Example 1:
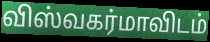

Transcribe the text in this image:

விஸ்வகர்மாவிடம்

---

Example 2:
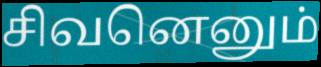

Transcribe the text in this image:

சிவனெனும்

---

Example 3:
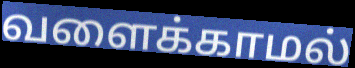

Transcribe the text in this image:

வளைக்காமல்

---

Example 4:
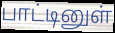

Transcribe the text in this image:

பாட்டினுள்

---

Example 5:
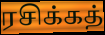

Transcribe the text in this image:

ரசிக்கத்